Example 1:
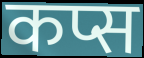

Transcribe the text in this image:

कप्स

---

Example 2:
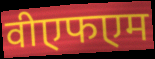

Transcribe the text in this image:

वीएफएम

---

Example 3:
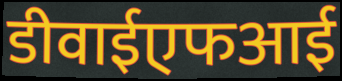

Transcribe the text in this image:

डीवाईएफआई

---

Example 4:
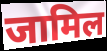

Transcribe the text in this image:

जामिल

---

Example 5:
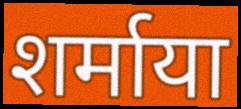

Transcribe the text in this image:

शर्माया